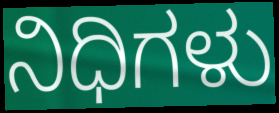
ನಿಧಿಗಳು